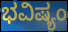
ಭವಿಷ್ಯಂ